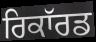
ਰਿਕਾੱਰਡ